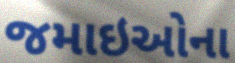
જમાઇઓના